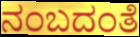
ನಂಬದಂತೆ